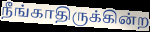
நீங்காதிருக்கின்ற